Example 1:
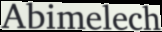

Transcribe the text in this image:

Abimelech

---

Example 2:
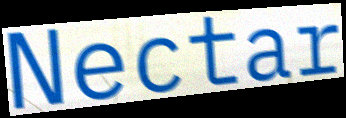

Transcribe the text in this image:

Nectar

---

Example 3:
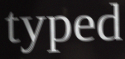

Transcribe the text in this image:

typed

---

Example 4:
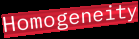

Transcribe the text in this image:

Homogeneity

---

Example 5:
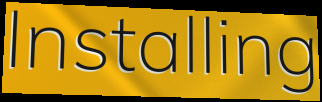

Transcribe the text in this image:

Installing